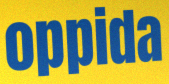
oppida